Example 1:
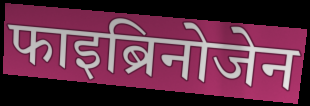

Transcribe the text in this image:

फाइब्रिनोजेन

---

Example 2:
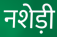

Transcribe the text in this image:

नशेड़ी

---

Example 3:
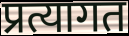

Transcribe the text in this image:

प्रत्यागत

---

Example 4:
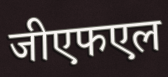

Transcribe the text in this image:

जीएफएल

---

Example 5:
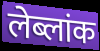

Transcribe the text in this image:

लेब्लांक